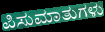
ಪಿಸುಮಾತುಗಳು